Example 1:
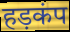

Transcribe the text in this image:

हड़कंप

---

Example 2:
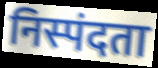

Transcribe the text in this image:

निस्पंदता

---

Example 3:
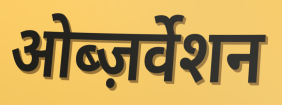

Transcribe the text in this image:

ओब्ज़र्वेशन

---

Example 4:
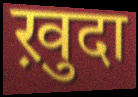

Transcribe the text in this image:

ख़ुदा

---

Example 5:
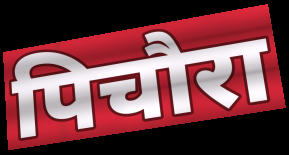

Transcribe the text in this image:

पिचौरा